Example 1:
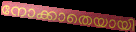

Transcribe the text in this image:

നോക്കാതെയായി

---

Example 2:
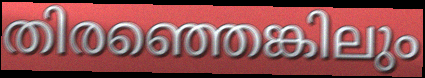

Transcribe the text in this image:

തിരഞ്ഞെങ്കിലും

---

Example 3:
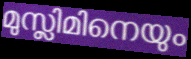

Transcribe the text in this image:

മുസ്ലിമിനെയും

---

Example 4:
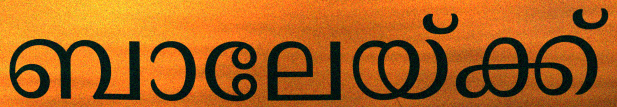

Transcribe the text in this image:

ബാലേയ്ക്ക്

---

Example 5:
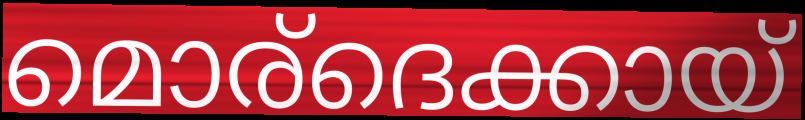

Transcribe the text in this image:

മൊര്ദെക്കായ്